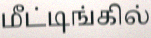
மீட்டிங்கில்